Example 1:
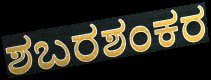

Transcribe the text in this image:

ಶಬರಶಂಕರ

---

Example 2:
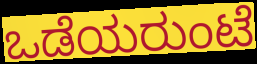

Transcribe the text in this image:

ಒಡೆಯರುಂಟೆ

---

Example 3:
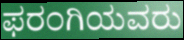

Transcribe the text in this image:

ಫರಂಗಿಯವರು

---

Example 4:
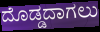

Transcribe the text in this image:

ದೊಡ್ಡದಾಗಲು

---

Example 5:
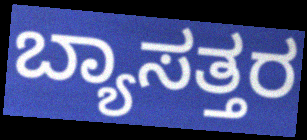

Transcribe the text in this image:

ಬ್ಯಾಸತ್ತರ